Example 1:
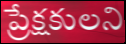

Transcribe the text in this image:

ప్రేక్షకులని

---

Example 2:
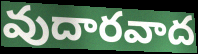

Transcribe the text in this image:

వుదారవాద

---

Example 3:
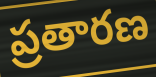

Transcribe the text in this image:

ప్రతారణ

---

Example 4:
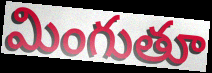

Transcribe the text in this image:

మింగుతూ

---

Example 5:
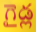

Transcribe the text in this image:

గైడ్ల